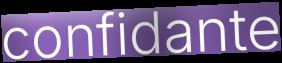
confidante